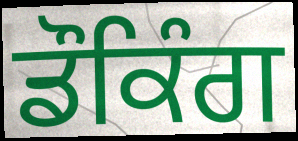
ਡੌਕਿੰਗ